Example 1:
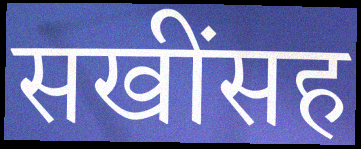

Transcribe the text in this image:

सखींसह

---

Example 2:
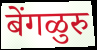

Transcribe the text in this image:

बेंगळुरु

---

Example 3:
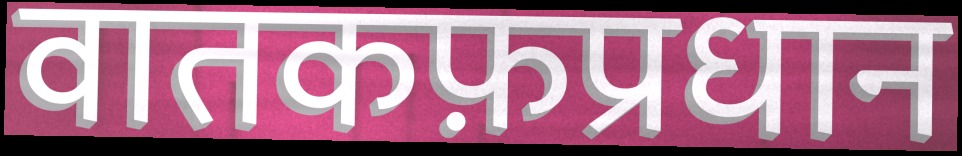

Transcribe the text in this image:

वातकफ़प्रधान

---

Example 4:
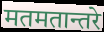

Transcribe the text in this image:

मतमतान्तरे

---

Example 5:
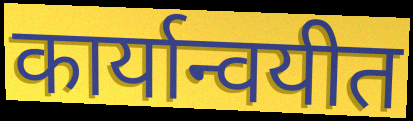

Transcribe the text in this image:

कार्यान्वयीत